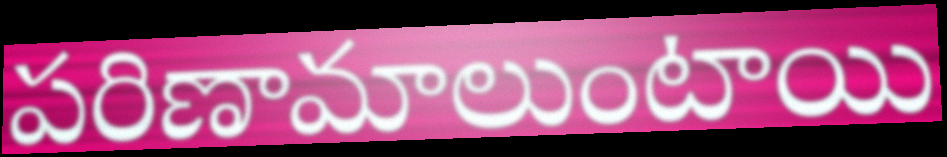
పరిణామాలుంటాయి